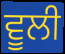
ਵੂਲੀ